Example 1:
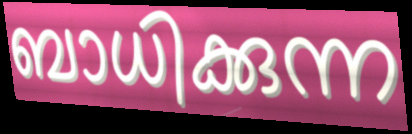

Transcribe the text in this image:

ബാധിക്കുന്ന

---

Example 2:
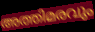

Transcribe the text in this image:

അത്തിമരവും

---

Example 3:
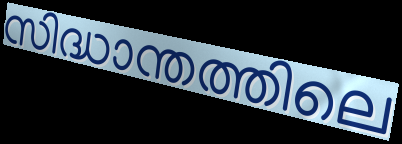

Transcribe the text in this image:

സിദ്ധാന്തത്തിലെ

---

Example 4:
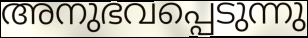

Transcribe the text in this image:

അനുഭവപ്പെടുന്നു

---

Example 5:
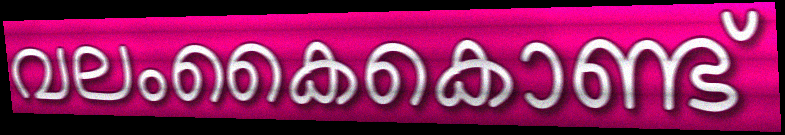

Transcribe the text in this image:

വലംകൈകൊണ്ട്